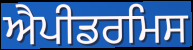
ਐਪੀਡਰਮਿਸ